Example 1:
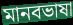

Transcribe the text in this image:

মানবভাষা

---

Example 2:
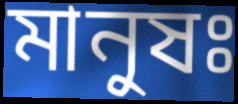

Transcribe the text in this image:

মানুষঃ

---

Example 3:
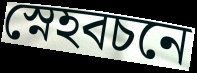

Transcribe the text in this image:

স্নেহবচনে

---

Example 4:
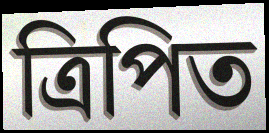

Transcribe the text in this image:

ত্রিপিত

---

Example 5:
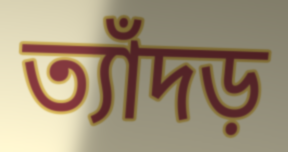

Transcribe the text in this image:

ত্যাঁদড়